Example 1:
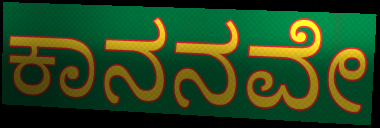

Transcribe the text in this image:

ಕಾನನವೇ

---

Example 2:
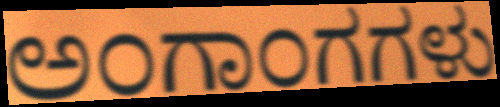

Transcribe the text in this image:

ಅಂಗಾಂಗಗಳು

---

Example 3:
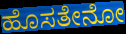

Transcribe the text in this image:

ಹೊಸತೇನೋ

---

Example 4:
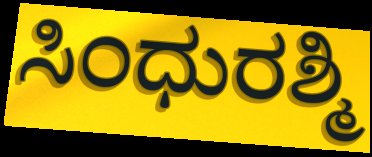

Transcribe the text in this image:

ಸಿಂಧುರಶ್ಮಿ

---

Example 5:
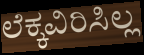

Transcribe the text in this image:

ಲೆಕ್ಕವಿರಿಸಿಲ್ಲ